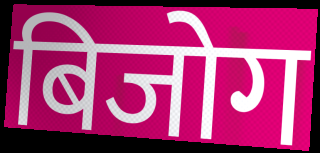
बिजोग